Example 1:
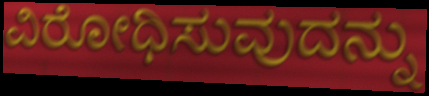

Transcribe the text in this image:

ವಿರೋಧಿಸುವುದನ್ನು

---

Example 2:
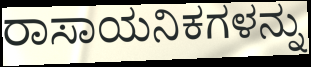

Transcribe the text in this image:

ರಾಸಾಯನಿಕಗಳನ್ನು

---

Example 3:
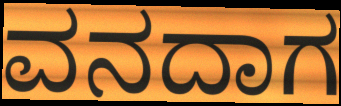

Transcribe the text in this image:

ವನದಾಗ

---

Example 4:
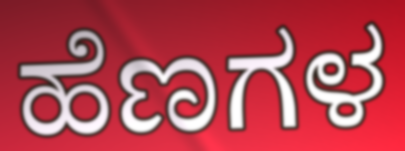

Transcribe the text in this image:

ಹೆಣಗಳ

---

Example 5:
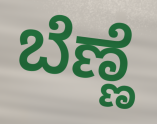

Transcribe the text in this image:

ಬೆಣ್ಣೆ